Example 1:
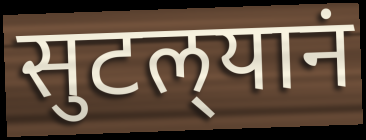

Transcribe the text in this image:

सुटल्यानं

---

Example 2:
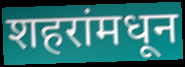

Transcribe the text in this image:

शहरांमधून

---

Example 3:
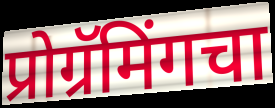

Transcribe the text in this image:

प्रोग्रॅमिंगचा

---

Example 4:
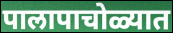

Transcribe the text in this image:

पालापाचोळ्यात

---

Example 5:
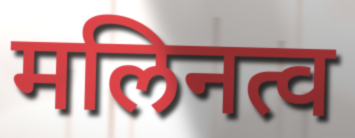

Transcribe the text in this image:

मलिनत्व